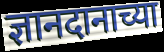
ज्ञानदानाच्या